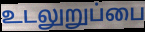
உடலுறுப்பை